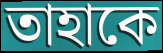
তাহাকে